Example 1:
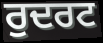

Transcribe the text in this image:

ਰੁਦਰਟ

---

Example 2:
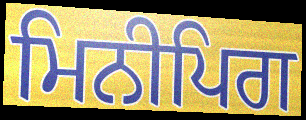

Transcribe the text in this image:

ਮਿਨੀਪਿਗ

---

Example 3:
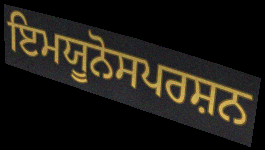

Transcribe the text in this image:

ਇਮਯੂਨੋਸਪਰਸ਼ਨ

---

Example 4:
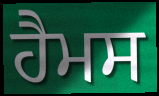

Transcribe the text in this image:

ਹੈਮਸ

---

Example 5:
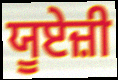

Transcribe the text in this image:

ਯੂਏਜ਼ੀ